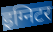
इग्निटर